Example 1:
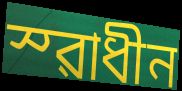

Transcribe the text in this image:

স্ৱাধীন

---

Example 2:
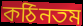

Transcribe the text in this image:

কঠিনতম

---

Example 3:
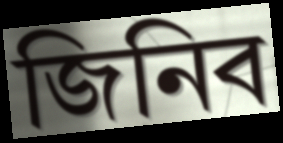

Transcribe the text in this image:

জিনিব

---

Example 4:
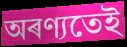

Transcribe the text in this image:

অৰণ্যতেই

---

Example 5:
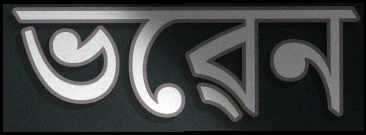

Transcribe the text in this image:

ভৱেন